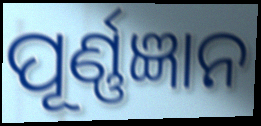
ପୂର୍ଣ୍ଣଜ୍ଞାନ